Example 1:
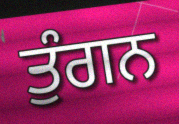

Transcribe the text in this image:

ਤੁੰਗਨ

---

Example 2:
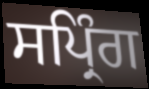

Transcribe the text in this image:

ਸਪ੍ਰਿੰਗ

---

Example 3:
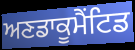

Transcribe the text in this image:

ਅਣਡਾਕੂਮੈਂਟਿਡ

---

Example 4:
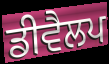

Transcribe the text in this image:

ਡੀਵੈਲਪ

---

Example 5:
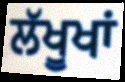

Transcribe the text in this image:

ਲੱਖੂਖਾਂ